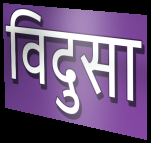
विदुसा